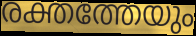
രക്തത്തേയും